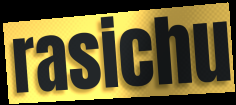
rasichu